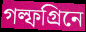
গল্ফগ্রিনে